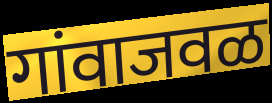
गांवाजवळ